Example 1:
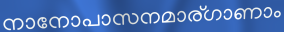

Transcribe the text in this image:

നാനോപാസനമാര്ഗാണാം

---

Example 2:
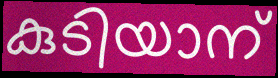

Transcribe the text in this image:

കുടിയാന്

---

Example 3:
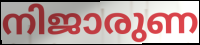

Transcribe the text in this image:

നിജാരുണ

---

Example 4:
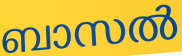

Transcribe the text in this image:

ബാസൽ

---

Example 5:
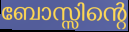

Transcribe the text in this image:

ബോസ്സിന്റെ